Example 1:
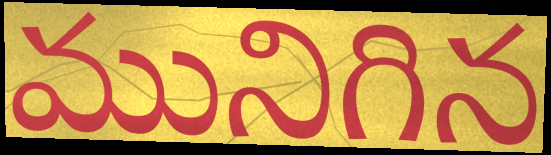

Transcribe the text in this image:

మునిగిన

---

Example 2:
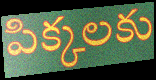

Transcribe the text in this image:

పిక్కలకు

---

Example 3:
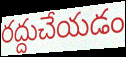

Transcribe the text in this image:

రద్దుచేయడం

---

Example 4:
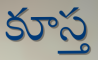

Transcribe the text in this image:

కూస్త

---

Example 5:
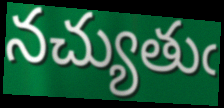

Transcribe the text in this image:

నచ్యుతుఁ